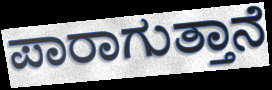
ಪಾರಾಗುತ್ತಾನೆ